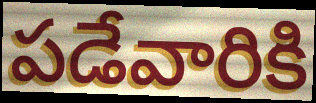
పడేవారికి